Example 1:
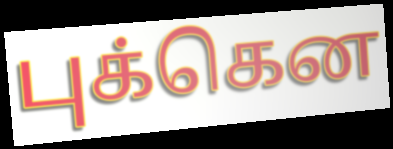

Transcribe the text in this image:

புக்கென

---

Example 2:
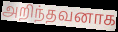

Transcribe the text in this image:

அறிந்தவனாக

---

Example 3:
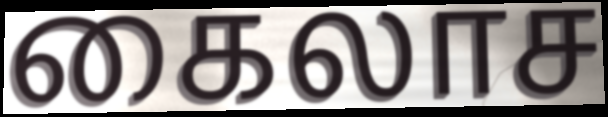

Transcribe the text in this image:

கைலாச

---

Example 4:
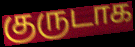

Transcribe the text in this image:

குருடாக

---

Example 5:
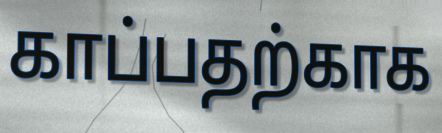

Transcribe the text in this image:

காப்பதற்காக